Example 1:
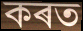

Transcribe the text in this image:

কৰত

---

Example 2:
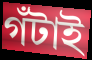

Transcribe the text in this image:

গঁটাই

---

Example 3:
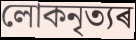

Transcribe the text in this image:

লোকনৃত্যৰ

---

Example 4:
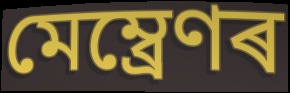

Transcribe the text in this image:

মেম্ব্ৰেণৰ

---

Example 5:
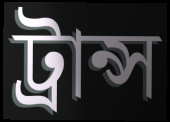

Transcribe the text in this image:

ট্ৰান্স